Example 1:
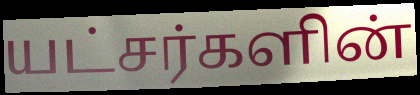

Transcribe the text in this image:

யட்சர்களின்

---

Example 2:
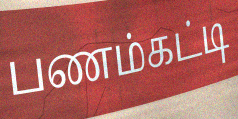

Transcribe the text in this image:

பணம்கட்டி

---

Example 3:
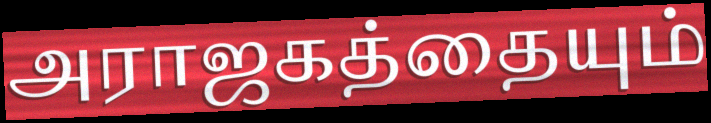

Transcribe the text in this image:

அராஜகத்தையும்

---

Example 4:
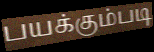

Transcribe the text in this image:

பயக்கும்படி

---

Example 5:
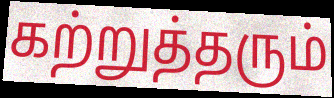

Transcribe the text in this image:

கற்றுத்தரும்